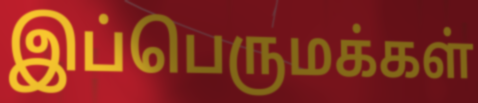
இப்பெருமக்கள்